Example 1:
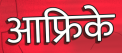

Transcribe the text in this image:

आफ्रिके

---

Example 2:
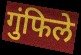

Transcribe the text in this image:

गुंफिले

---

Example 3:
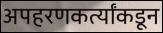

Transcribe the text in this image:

अपहरणकर्त्यांकडून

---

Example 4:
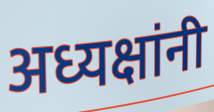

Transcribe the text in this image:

अध्यक्षांनी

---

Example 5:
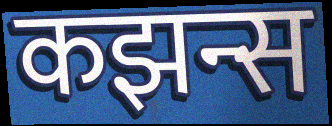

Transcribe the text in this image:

कझन्स